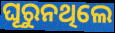
ଘୂରୁନଥିଲେ